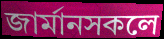
জাৰ্মানসকলে